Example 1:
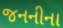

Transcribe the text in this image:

જનનીના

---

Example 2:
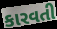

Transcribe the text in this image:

કારવતી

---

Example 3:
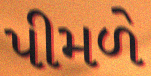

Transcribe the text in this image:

પીમળે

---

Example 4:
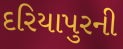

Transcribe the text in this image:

દરિયાપુરની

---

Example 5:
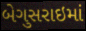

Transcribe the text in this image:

બેગુસરાઇમાં